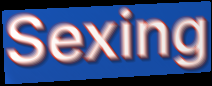
Sexing